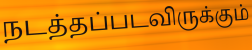
நடத்தப்படவிருக்கும்